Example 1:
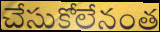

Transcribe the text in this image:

చేసుకోలేనంత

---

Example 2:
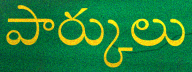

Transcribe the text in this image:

పార్కులు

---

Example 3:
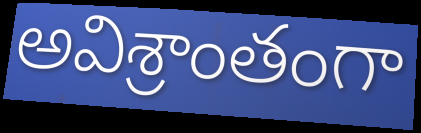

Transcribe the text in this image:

అవిశ్రాంతంగా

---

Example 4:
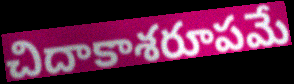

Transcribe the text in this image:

చిదాకాశరూపమే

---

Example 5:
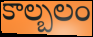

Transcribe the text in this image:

కాల్బలం